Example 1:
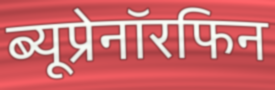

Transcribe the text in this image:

ब्यूप्रेनॉरफिन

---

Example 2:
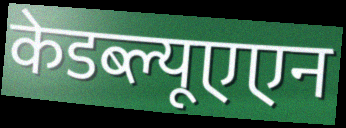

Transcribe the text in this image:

केडब्ल्यूएएन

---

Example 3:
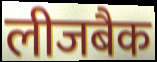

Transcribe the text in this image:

लीजबैक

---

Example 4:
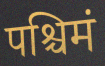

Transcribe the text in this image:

पश्चिमं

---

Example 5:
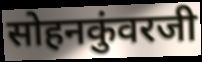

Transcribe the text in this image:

सोहनकुंवरजी